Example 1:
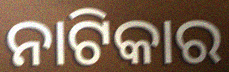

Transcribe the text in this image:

ନାଟିକାର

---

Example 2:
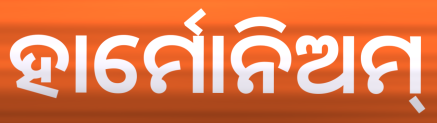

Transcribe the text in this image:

ହାର୍ମୋନିଅମ୍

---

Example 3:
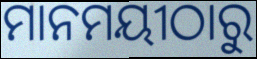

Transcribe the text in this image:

ମାନମୟୀଠାରୁ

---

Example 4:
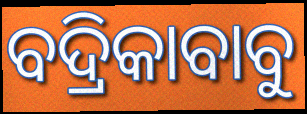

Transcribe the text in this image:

ବଦ୍ରିକାବାବୁ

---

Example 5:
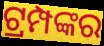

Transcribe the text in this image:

ଟ୍ରମ୍ପଙ୍କର